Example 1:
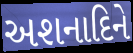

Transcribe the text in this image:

અશનાદિને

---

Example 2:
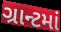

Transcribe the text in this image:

ગ્રાન્ટમાં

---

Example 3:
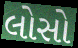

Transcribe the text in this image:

લોસો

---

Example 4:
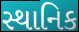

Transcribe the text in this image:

સ્થાનિક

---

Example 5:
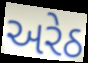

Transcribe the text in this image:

અરેઠ